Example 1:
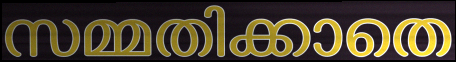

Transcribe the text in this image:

സമ്മതിക്കാതെ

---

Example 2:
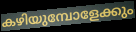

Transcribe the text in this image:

കഴിയുമ്പോളേക്കും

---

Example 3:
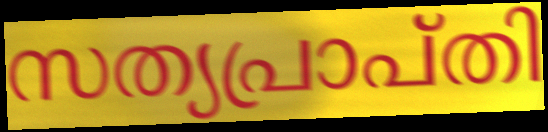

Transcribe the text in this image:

സത്യപ്രാപ്തി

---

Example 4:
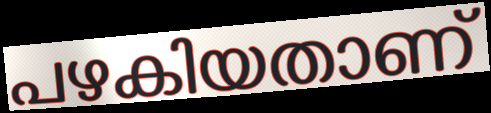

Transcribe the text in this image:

പഴകിയതാണ്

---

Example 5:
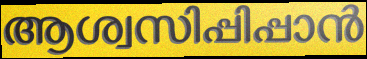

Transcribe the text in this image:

ആശ്വസിപ്പിപ്പാൻ